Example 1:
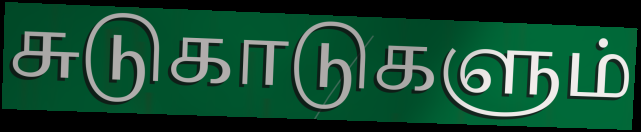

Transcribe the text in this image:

சுடுகாடுகளும்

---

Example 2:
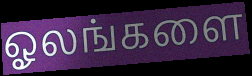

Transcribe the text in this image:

ஓலங்களை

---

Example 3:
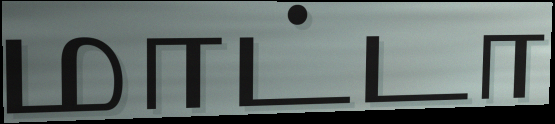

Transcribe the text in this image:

மாட்டா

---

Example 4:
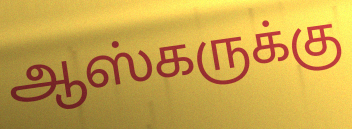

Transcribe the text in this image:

ஆஸ்கருக்கு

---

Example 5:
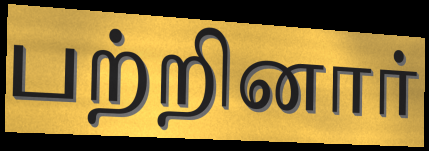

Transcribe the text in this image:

பற்றினார்